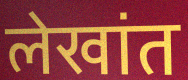
लेखांत